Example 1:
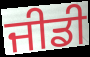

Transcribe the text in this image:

ਜੀਡੀ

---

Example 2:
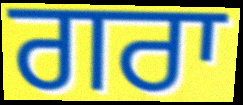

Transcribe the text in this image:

ਗਰਾ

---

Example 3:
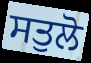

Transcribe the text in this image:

ਸਤੁਲੋ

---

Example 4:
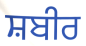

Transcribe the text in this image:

ਸ਼ਬੀਰ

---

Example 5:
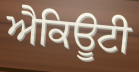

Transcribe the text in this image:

ਐਕਿਊਟੀ